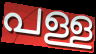
പള്ള